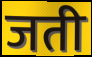
जती